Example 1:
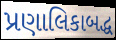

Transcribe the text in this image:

પ્રણાલિકાબદ્ધ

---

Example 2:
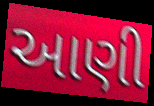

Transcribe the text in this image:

આણી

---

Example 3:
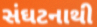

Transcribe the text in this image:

સંઘટનાથી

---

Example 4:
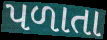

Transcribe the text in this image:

પળાતા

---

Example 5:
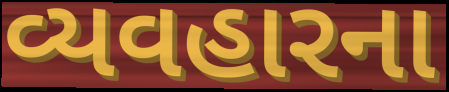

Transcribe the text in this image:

વ્યવહારના